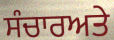
ਸੰਚਾਰਅਤੇ